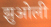
झुओली